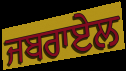
ਜਬਰਾਏਲ